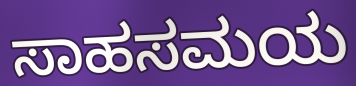
ಸಾಹಸಮಯ